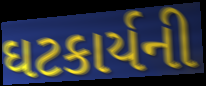
ઘટકાર્યની